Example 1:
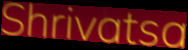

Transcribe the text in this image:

Shrivatsa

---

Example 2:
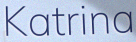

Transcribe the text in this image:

Katrina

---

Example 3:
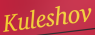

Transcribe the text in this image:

Kuleshov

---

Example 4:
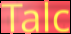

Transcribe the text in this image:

Talc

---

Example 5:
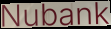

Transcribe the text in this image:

Nubank